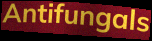
Antifungals